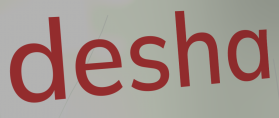
desha